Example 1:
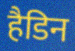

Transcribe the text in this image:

हैडिन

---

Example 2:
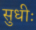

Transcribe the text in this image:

सुधीः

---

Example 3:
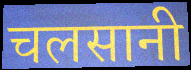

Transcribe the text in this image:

चलसानी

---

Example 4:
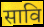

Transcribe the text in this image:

सावि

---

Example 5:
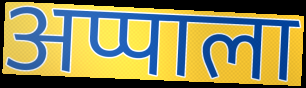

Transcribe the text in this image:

अप्पाला